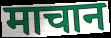
माचान